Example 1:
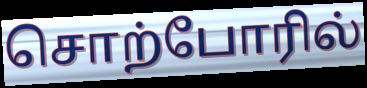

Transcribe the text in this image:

சொற்போரில்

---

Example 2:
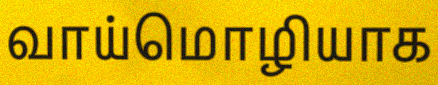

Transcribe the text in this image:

வாய்மொழியாக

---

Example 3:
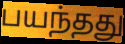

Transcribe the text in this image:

பயந்தது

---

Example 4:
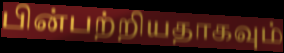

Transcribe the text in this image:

பின்பற்றியதாகவும்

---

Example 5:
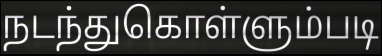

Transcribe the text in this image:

நடந்துகொள்ளும்படி